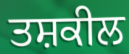
ਤਸ਼ਕੀਲ